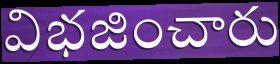
విభజించారు